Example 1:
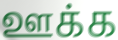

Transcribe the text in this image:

ஊக்க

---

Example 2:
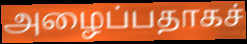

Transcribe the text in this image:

அழைப்பதாகச்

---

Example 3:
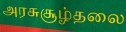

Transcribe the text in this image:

அரசுசூழ்தலை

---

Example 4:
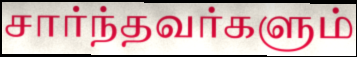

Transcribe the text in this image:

சார்ந்தவர்களும்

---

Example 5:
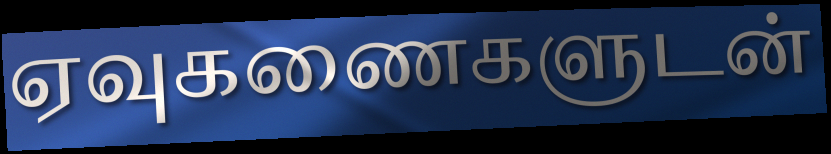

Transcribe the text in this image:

ஏவுகணைகளுடன்